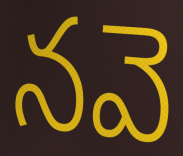
నవె